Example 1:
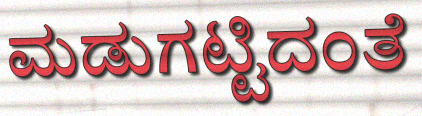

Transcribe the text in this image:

ಮಡುಗಟ್ಟಿದಂತೆ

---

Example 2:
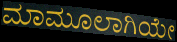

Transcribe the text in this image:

ಮಾಮೂಲಾಗಿಯೇ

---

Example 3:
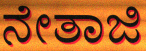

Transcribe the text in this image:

ನೇತಾಜಿ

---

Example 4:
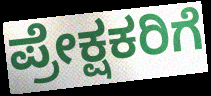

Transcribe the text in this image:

ಪ್ರೇಕ್ಷಕರಿಗೆ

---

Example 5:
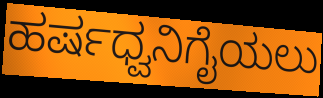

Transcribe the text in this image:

ಹರ್ಷಧ್ವನಿಗೈಯಲು